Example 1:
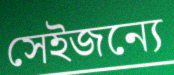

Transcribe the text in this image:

সেইজন্যে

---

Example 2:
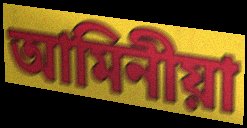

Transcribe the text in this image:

আমিনীয়া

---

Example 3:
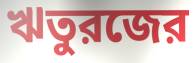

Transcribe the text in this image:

ঋতুরজের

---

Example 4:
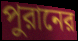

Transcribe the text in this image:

পুরানের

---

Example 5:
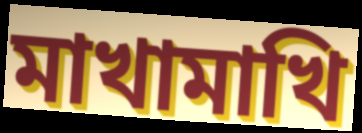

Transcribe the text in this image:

মাখামাখি